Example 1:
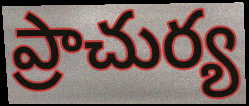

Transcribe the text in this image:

ప్రాచుర్య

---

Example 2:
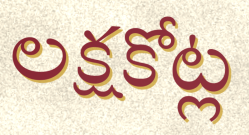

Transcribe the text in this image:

లక్షకోట్ల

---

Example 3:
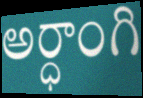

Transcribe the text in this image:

అర్ధాంగి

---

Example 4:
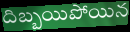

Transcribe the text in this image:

దిబ్బయిపోయిన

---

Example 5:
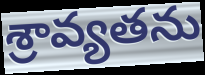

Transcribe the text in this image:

శ్రావ్యతను